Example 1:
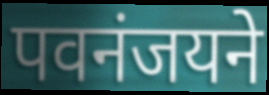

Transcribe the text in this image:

पवनंजयने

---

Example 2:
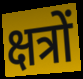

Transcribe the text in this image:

क्षत्रों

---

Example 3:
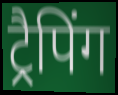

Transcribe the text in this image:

ट्रैपिंग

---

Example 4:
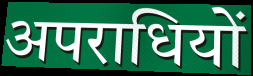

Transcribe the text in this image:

अपराधियों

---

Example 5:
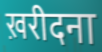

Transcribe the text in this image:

ख़रीदना